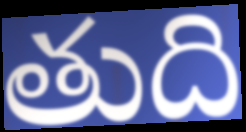
తుది